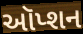
ઑપ્શન